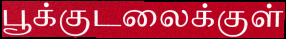
பூக்குடலைக்குள்